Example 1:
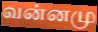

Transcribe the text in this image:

வன்னமு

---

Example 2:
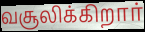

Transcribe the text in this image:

வசூலிக்கிறார்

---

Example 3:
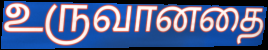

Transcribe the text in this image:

உருவானதை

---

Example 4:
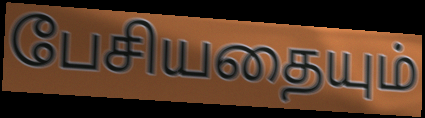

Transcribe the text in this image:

பேசியதையும்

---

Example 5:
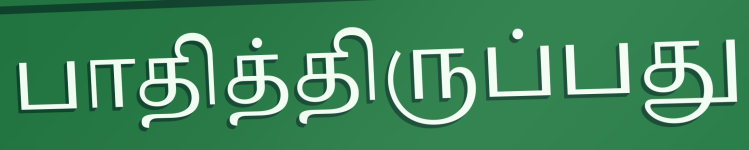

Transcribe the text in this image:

பாதித்திருப்பது